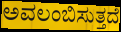
ಅವಲಂಬಿಸುತ್ತದೆ